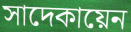
সাদেকায়েন